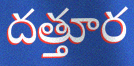
దత్తూర